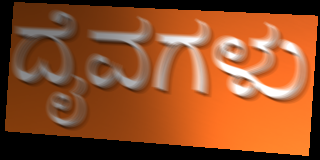
ದೈವಗಳು